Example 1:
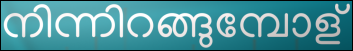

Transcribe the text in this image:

നിന്നിറങ്ങുമ്പോള്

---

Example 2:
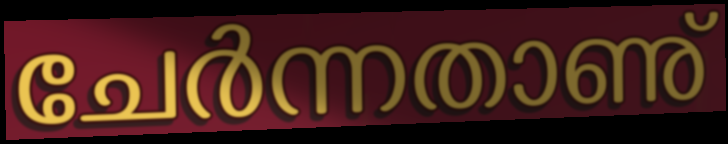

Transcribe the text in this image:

ചേർന്നതാണു്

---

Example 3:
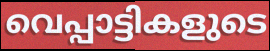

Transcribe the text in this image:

വെപ്പാട്ടികളുടെ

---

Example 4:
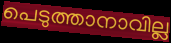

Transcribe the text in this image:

പെടുത്താനാവില്ല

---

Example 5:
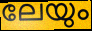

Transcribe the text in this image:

ലേയും